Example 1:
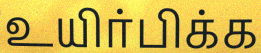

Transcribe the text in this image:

உயிர்பிக்க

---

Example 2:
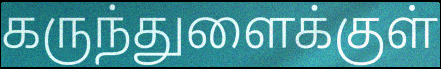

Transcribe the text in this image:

கருந்துளைக்குள்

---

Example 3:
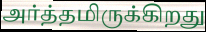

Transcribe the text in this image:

அர்த்தமிருக்கிறது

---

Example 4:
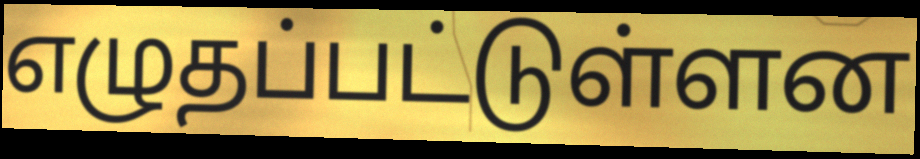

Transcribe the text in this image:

எழுதப்பட்டுள்ளன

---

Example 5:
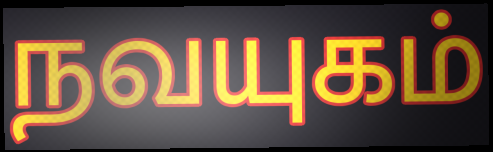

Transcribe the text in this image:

நவயுகம்